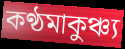
কণ্ঠমাকুঞ্চ্য